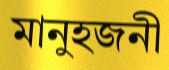
মানুহজনী